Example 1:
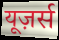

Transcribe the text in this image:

यूज़र्स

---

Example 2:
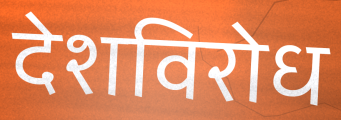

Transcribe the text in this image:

देशविरोध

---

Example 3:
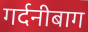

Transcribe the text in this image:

गर्दनीबाग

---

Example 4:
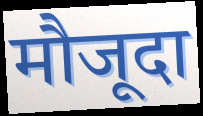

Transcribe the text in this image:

मौजूदा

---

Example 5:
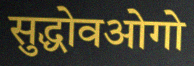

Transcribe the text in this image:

सुद्धोवओगो